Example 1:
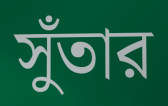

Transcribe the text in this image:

সুঁতার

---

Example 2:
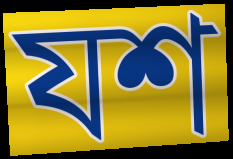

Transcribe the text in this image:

যশ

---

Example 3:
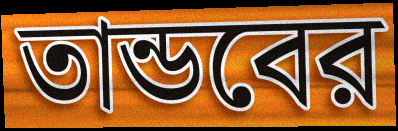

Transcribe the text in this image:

তান্ডবের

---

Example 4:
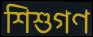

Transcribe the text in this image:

শিশুগণ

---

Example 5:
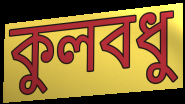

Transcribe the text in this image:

কুলবধু